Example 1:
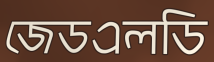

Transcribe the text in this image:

জেডএলডি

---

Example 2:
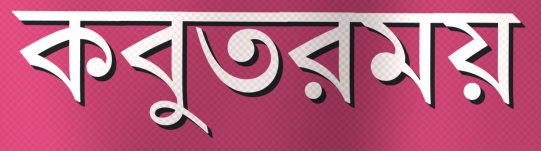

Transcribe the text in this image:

কবুতরময়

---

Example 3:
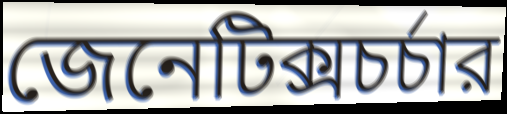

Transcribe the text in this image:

জেনেটিক্সচর্চার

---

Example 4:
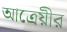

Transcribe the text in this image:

আত্রেয়ীর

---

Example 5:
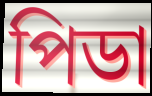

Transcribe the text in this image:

পিডা